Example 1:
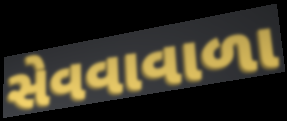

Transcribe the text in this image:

સેવવાવાળા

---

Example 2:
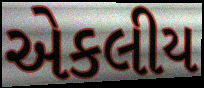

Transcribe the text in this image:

એકલીય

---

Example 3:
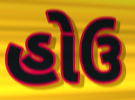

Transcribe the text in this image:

હોઉ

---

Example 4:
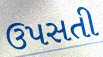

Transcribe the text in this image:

ઉપસતી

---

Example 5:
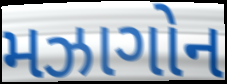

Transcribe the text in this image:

મઝાગોન